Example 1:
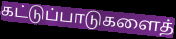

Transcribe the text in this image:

கட்டுப்பாடுகளைத்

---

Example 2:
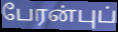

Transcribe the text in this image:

பேரன்புப்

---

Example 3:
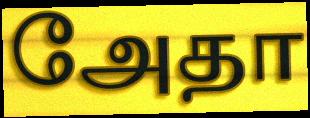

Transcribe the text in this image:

அேதா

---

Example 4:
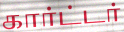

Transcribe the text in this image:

கார்ட்டர்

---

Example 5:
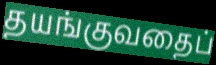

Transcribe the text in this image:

தயங்குவதைப்